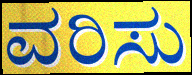
ವರಿಸು